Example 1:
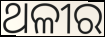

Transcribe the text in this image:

ଥଳୀର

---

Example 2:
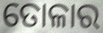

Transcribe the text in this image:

ତୋଳାର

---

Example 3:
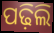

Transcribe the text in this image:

ପଢ଼ିଲି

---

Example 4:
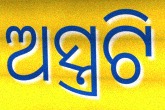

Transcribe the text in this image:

ଅସ୍ତ୍ରଟି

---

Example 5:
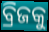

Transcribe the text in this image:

ବ୍ରିଜକୁ